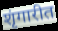
शृंगारीत